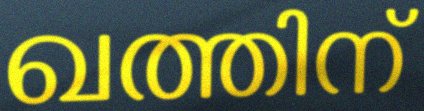
ഖത്തിന്